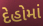
દેહોમાં